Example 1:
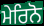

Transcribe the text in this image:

ਮੇਰਿਨੋ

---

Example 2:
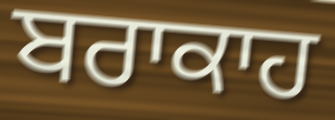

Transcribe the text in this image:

ਬਰਾਕਾਹ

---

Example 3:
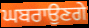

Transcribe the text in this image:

ਘਬਰਾਉਣਗੇ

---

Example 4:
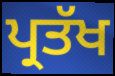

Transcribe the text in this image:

ਪ੍ਰਤੱਖ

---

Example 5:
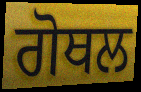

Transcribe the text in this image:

ਗੋਥਲ